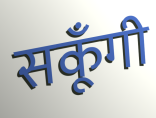
सकूँगी